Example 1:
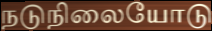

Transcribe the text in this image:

நடுநிலையோடு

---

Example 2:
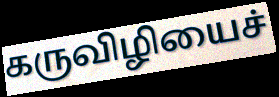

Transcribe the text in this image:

கருவிழியைச்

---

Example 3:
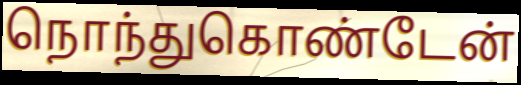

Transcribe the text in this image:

நொந்துகொண்டேன்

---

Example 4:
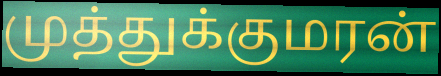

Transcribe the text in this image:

முத்துக்குமரன்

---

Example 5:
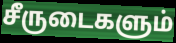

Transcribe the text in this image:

சீருடைகளும்